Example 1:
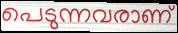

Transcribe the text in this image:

പെടുന്നവരാണ്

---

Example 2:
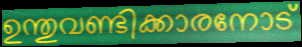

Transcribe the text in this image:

ഉന്തുവണ്ടിക്കാരനോട്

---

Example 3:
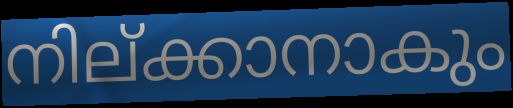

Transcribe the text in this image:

നില്ക്കാനാകും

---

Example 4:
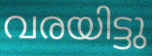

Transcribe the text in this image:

വരയിട്ടു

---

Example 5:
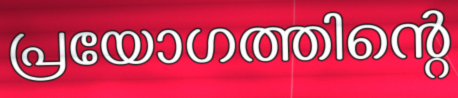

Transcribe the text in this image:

പ്രയോഗത്തിന്റെ